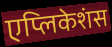
एप्लिकेशंस